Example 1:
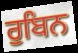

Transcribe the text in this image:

ਰੁਬਿਨ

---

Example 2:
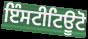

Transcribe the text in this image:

ਇੰਸਟੀਟਿਊਟੋ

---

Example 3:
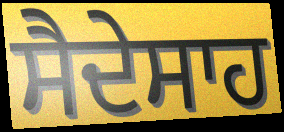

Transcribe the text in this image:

ਸੈਦੇਸਾਹ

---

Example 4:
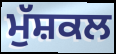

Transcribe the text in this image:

ਮੁੱਸ਼ਕਲ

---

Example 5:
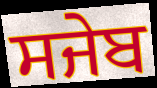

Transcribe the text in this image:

ਸਜੇਬ